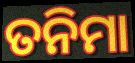
ତନିମା